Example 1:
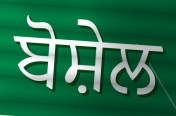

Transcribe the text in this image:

ਬੋਸ਼ੇਲ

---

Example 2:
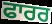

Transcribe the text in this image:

ਫਾਰਰ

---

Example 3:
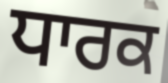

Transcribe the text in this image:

ਧਾਰਕ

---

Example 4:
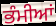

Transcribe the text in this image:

ਭੰਮੀਆਂ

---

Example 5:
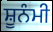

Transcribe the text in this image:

ਸ਼ੂਨੰਮੀ